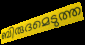
ബിരുദമെടുത്ത